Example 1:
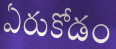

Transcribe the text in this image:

ఏరుకోడం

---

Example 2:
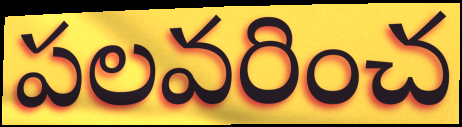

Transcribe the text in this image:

పలవరించ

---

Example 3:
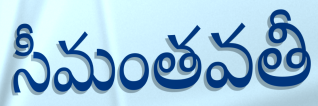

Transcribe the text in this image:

సీమంతవతీ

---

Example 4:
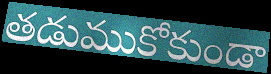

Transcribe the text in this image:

తడుముకోకుండా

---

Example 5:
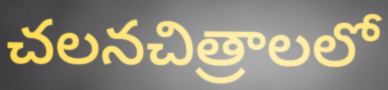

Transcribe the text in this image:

చలనచిత్రాలలో